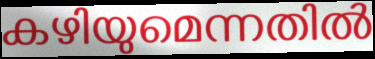
കഴിയുമെന്നതിൽ